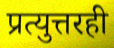
प्रत्युत्तरही